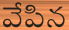
వేపిన